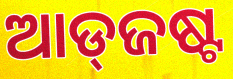
ଆଡ୍‌ଜଷ୍ଟ